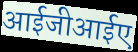
आईजीआईए